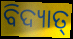
ବିଦ୍ୟାତ୍